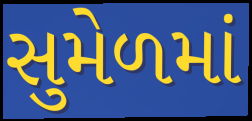
સુમેળમાં